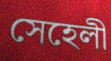
সেহেলী